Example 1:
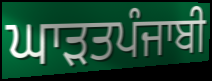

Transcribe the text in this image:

ਘਾੜਤਪੰਜਾਬੀ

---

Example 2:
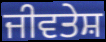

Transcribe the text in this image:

ਜੀਵਤੇਸ਼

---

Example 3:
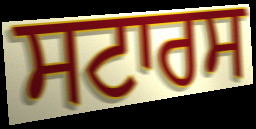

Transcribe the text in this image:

ਸਟਾਰਸ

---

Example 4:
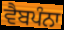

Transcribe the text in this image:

ਵੈਬਪੰਨਾ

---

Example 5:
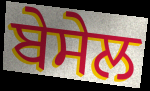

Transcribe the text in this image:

ਬੇਸੇਲ